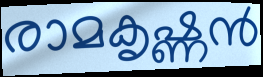
രാമകൃഷ്ണൻ